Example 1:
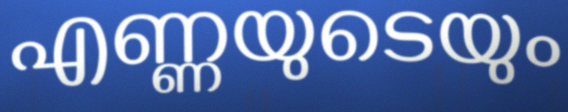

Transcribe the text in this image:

എണ്ണയുടെയും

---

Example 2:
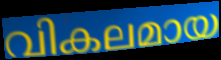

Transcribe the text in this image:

വികലമായ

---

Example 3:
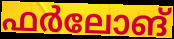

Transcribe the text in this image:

ഫർലോങ്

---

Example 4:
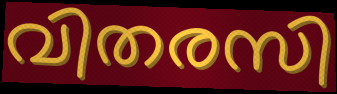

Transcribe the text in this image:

വിതരസി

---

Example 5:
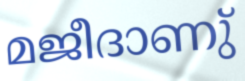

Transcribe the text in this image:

മജീദാണു്